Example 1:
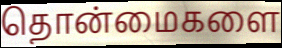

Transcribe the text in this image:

தொன்மைகளை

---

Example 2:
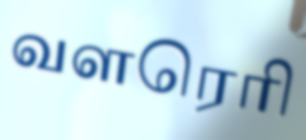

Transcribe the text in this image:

வளரெரி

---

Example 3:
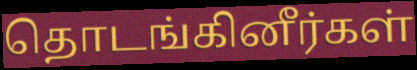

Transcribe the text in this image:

தொடங்கினீர்கள்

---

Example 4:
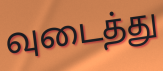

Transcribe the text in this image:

வுடைத்து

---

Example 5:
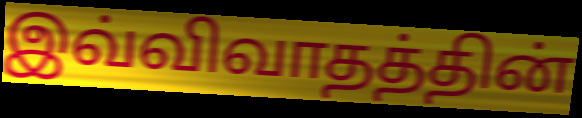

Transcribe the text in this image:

இவ்விவாதத்தின்